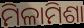
ମିଳାମିଶା